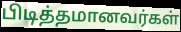
பிடித்தமானவர்கள்